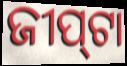
ଜୀପ୍‍ଟା